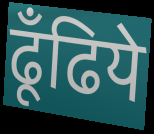
ढूँढिये